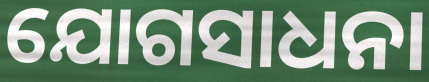
ଯୋଗସାଧନା